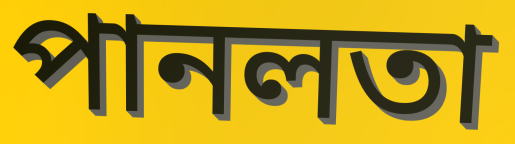
পানলতা